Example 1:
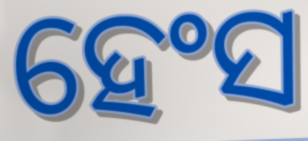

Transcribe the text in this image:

ହେଂସ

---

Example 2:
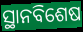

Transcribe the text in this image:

ସ୍ଥାନବିଶେଷ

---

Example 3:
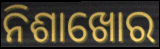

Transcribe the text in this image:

ନିଶାଖୋର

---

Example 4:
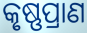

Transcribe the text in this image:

କୃଷ୍ଣପ୍ରାଣ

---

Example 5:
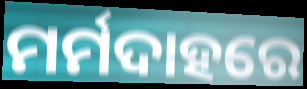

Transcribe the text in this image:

ମର୍ମଦାହରେ